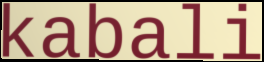
kabali